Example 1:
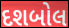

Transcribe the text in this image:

દશબોલ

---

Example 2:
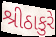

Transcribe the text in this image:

શ્રીઠાકુરે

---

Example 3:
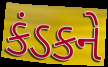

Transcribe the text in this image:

કંડકને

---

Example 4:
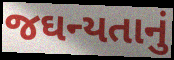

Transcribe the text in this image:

જઘન્યતાનું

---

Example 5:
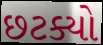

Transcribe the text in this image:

છટક્યો